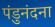
पंडुनंदना